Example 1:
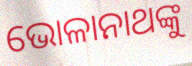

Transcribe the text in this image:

ଭୋଳାନାଥଙ୍କୁ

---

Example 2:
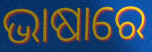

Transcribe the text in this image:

ଭାଷାରେ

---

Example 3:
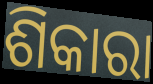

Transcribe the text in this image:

ଶିକାରା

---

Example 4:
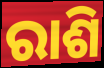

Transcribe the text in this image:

ରାଶି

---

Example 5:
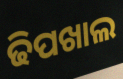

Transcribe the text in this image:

ଢିପଖାଲ